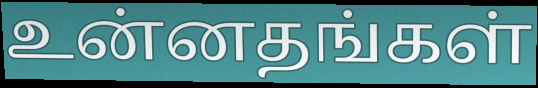
உன்னதங்கள்